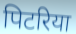
पिटरिया